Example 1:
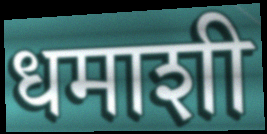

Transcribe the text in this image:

धमाशी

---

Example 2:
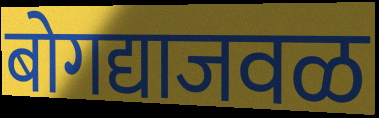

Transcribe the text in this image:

बोगद्याजवळ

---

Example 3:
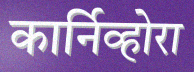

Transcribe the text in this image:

कार्निव्होरा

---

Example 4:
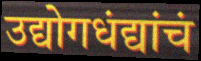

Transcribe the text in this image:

उद्योगधंद्यांचं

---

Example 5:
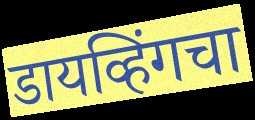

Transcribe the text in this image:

डायव्हिंगचा